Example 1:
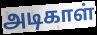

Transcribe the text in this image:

அடிகாள்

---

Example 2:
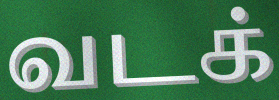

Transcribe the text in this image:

வடக்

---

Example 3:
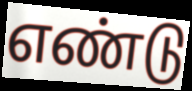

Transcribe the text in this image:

எண்டு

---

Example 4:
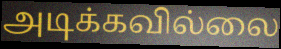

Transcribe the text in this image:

அடிக்கவில்லை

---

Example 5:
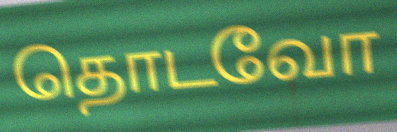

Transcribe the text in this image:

தொடவோ